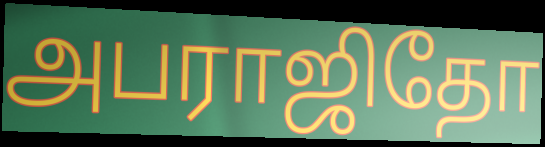
அபராஜிதோ